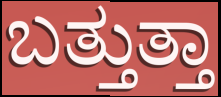
ಬತ್ತುತ್ತಾ